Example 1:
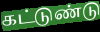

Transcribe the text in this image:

கட்டுண்டு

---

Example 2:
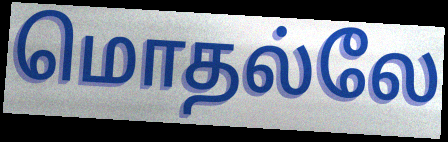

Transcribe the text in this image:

மொதல்லே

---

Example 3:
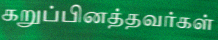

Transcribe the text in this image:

கறுப்பினத்தவர்கள்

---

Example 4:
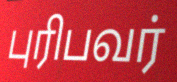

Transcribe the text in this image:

புரிபவர்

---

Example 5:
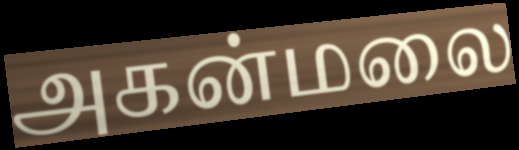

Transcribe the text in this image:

அகன்மலை